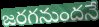
జరగనుందనే